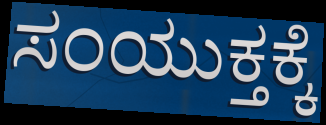
ಸಂಯುಕ್ತಕ್ಕೆ